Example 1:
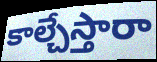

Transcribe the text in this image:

కాల్చేస్తారా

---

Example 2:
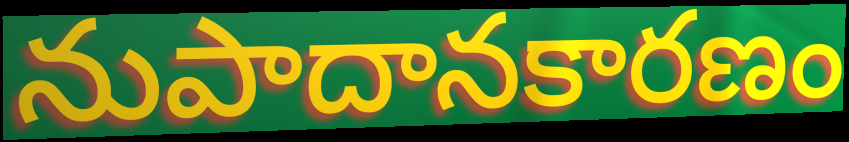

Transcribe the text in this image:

నుపాదానకారణం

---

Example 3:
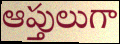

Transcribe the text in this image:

ఆప్తులుగా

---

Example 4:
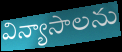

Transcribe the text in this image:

విన్యాసాలను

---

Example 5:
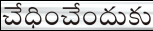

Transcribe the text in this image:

చేధించేందుకు